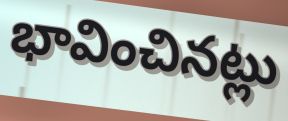
భావించినట్లు